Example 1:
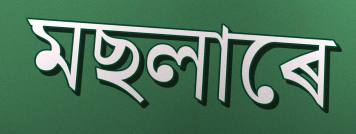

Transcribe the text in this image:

মছলাৰে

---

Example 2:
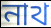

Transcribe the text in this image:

নাথ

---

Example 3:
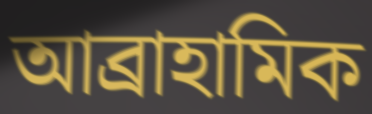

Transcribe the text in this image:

আব্ৰাহামিক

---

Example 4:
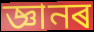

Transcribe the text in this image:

জ্ঞানৰ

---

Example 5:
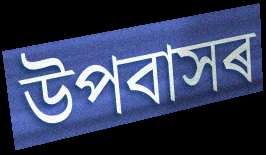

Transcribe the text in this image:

উপবাসৰ